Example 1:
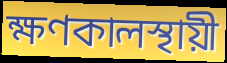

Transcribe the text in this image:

ক্ষণকালস্থায়ী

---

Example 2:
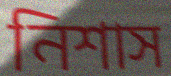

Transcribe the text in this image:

নিশাস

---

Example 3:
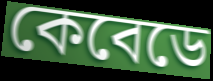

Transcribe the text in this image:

কেবেডে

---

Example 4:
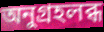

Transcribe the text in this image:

অনুগ্রহলব্ধ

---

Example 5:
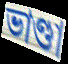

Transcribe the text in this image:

ভাণ্ডা